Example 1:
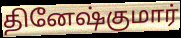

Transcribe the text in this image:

தினேஷ்குமார்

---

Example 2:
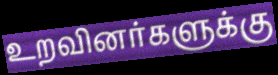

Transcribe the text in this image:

உறவினர்களுக்கு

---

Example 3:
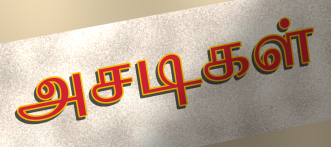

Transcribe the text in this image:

அசடிகள்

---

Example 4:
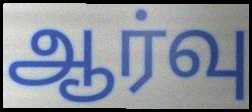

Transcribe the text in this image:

ஆர்வு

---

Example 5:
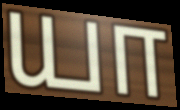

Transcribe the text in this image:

யா